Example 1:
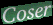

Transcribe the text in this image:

Coser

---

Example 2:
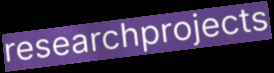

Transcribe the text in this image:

researchprojects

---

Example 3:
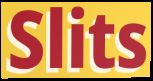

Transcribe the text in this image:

Slits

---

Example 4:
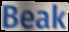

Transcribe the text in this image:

Beak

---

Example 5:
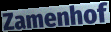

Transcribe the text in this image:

Zamenhof